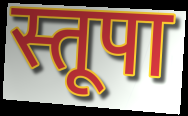
स्तूपा